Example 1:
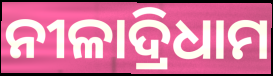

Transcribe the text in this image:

ନୀଳାଦ୍ରିଧାମ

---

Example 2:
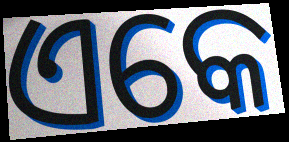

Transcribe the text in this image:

ଏକେ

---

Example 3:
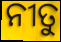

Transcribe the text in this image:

ନୀତୁ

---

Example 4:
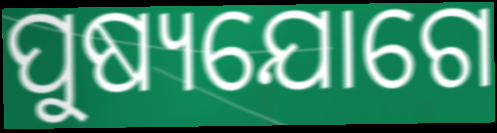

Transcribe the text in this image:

ପୁଷ୍ୟଯୋଗେ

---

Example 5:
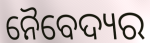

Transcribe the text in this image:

ନୈବେଦ୍ୟର